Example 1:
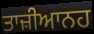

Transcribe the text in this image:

ਤਾਜ਼ੀਆਨਹ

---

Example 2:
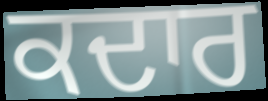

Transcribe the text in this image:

ਕਦਾਰ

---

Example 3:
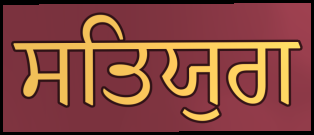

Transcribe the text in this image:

ਸਤਿਯੁਗ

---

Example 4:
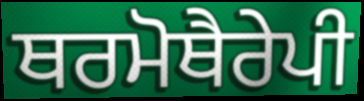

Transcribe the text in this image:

ਥਰਮੋਥੈਰੇਪੀ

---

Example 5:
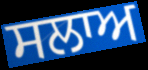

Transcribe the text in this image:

ਸਲਾਅ